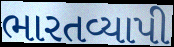
ભારતવ્યાપી